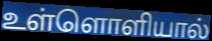
உள்ளொளியால்